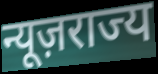
न्यूज़राज्य